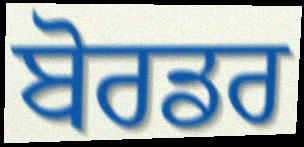
ਬੋਰਡਰ